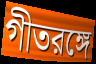
গীতরঙ্গে